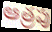
ఆత్రపు